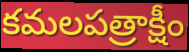
కమలపత్రాక్షీం